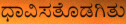
ಧಾವಿಸತೊಡಗಿತು